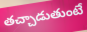
తచ్చాడుతుంటే